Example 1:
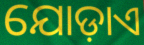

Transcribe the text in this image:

ଯୋଡ଼ାଏ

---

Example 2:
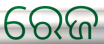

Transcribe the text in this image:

ରେଜ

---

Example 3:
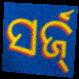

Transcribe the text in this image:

ସର୍ଜ୍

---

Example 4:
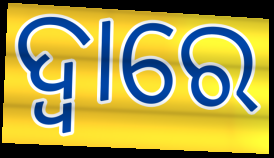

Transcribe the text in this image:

ଦ୍ବାରେ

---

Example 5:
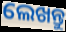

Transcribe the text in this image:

ଲେଖନ୍ତୁ